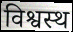
विश्वस्थ